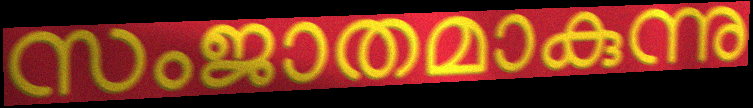
സംജാതമാകുന്നു